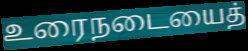
உரைநடையைத்